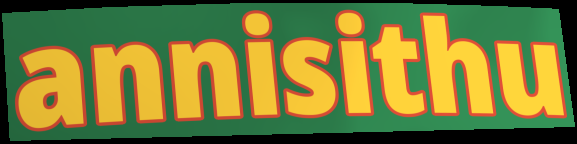
annisithu